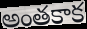
అంతకాక